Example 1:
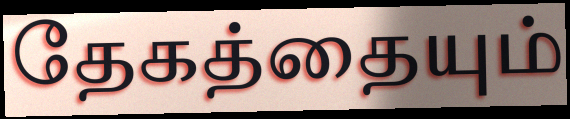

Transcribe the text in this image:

தேகத்தையும்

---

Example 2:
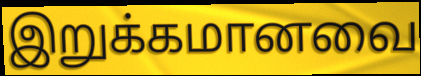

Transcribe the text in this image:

இறுக்கமானவை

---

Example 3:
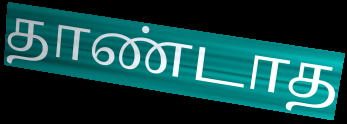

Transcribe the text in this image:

தாண்டாத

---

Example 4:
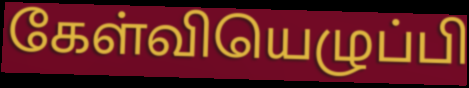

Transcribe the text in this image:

கேள்வியெழுப்பி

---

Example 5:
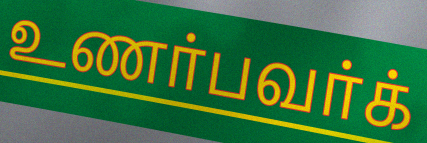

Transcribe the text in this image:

உணர்பவர்க்